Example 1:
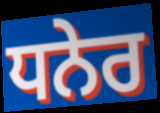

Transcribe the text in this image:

ਧਨੇਰ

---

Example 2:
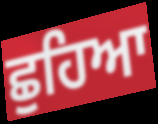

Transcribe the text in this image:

ਛੁਹਿਆ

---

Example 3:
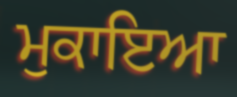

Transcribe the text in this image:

ਮੁਕਾਇਆ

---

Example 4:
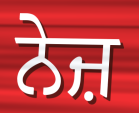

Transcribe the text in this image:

ਨੇਜ਼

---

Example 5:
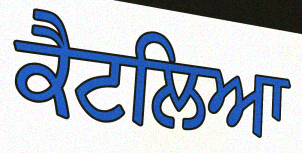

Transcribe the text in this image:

ਕੈਟਲਿਆ